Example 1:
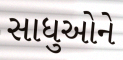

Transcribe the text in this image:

સાધુઓને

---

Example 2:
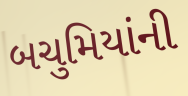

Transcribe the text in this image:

બચુમિયાંની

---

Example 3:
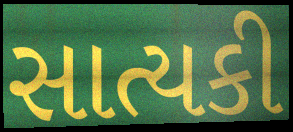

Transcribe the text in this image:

સાત્યકી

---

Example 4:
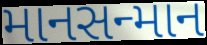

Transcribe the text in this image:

માનસન્માન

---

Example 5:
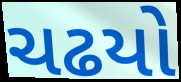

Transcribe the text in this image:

ચઢયો